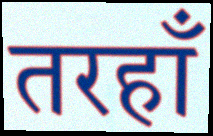
तरहाँ